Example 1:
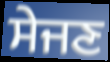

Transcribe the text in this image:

ਸੇਜਣ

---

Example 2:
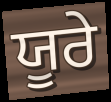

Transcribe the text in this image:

ਯੂਰੇ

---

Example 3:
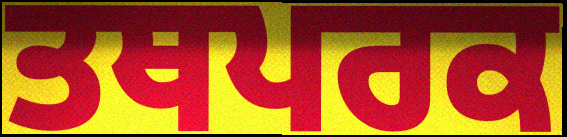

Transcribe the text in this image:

ਤਥਪਰਕ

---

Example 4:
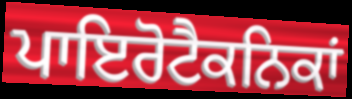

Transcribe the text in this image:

ਪਾਇਰੋਟੈਕਨਿਕਾਂ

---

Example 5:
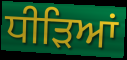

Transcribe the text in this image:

ਧੀੜਿਆਂ